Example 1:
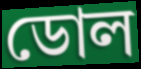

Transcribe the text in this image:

ডোল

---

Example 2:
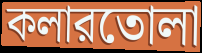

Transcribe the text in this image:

কলারতোলা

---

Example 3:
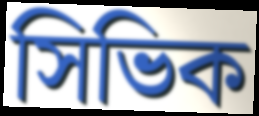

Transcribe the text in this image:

সিভিক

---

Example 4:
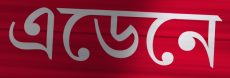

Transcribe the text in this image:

এডেনে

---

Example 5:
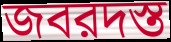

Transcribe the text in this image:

জবরদস্ত